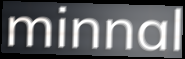
minnal